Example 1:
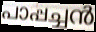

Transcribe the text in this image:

പാപ്പച്ചൻ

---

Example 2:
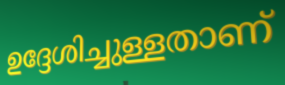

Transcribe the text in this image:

ഉദ്ദേശിച്ചുള്ളതാണ്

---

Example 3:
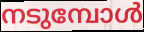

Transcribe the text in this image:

നടുമ്പോൾ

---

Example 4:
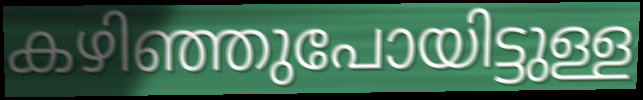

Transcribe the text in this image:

കഴിഞ്ഞുപോയിട്ടുള്ള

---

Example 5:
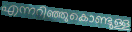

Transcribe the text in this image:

എന്നറിഞ്ഞുകൊണ്ടുള്ള